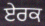
ਏਰਕ